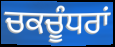
ਚਕਚੂੰਧਰਾਂ